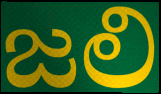
జలి